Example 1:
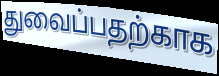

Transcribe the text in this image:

துவைப்பதற்காக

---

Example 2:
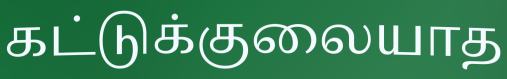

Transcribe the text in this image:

கட்டுக்குலையாத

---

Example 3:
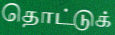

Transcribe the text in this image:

தொட்டுக்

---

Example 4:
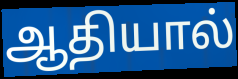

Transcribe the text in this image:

ஆதியால்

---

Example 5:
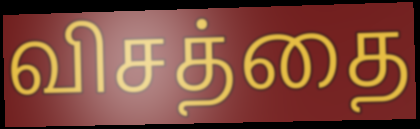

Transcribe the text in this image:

விசத்தை